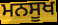
ਮਨਸੂਖ